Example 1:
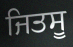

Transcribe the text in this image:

ਜਿਤਸੂ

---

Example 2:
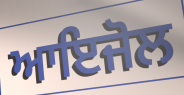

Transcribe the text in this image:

ਆਇਜੋਲ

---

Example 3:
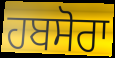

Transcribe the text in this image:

ਹਬਸੋਰਾ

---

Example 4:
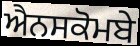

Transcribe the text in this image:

ਐਨਸਕੋਮਬੇ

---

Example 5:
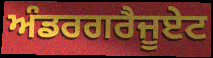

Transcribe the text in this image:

ਅੰਡਰਗਰੈਜੂਏਟ